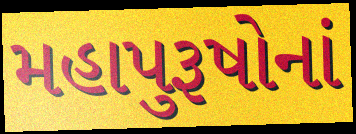
મહાપુરૂષોનાં